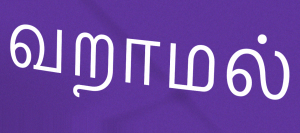
வறாமல்